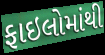
ફાઇલોમાંથી